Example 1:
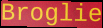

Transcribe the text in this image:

Broglie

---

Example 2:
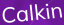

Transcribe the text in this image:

Calkin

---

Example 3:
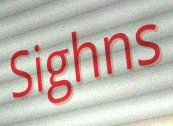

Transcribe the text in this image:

Sighns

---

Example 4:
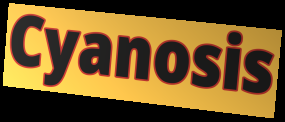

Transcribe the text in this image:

Cyanosis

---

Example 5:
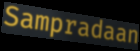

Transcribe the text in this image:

Sampradaan